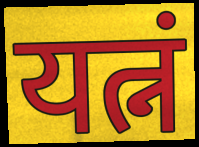
यत्नं